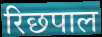
रिछपाल